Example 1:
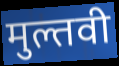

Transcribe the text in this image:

मुल्तवी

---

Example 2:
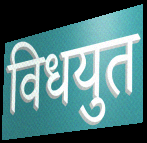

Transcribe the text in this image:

विधयुत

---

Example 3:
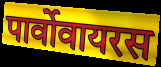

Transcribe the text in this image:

पार्वोवायरस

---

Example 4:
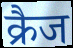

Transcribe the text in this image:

क्रैज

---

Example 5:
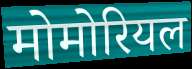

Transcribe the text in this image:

मोमोरियल